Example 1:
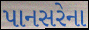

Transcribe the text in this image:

પાનસરેના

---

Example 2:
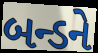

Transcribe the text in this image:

બન્ડને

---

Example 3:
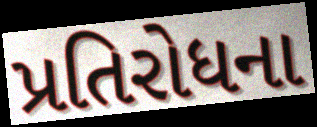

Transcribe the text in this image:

પ્રતિરોધના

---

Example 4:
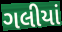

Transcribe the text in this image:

ગલીયાં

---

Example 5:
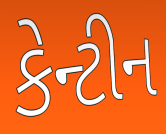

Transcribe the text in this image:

કેન્ટીન